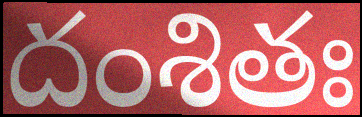
దంశితః